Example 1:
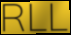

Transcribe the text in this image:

RLL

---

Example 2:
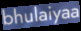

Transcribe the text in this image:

bhulaiyaa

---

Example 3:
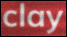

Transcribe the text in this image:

clay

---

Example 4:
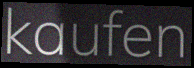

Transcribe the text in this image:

kaufen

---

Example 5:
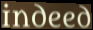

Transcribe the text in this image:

indeed